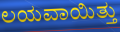
ಲಯವಾಯಿತ್ತು